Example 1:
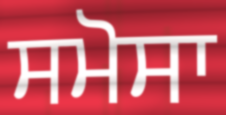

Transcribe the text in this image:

ਸਮੋਸਾ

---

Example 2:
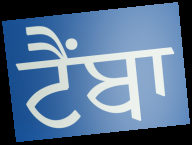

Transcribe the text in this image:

ਟੈਂਬਾ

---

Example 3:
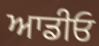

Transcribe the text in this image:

ਆਡੀਓ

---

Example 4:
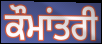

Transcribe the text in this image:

ਕੌਮਾਂਤਰੀ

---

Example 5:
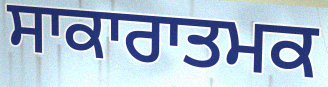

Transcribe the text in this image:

ਸਾਕਾਰਾਤਮਕ